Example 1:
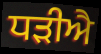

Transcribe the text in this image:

ਧੜੀਐ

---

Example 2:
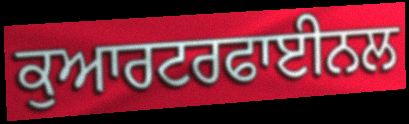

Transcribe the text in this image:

ਕੁਆਰਟਰਫਾਈਨਲ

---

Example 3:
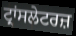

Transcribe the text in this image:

ਟ੍ਰਾਂਸਲੇਟਰਜ਼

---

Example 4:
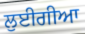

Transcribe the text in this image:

ਲੁਈਗੀਆ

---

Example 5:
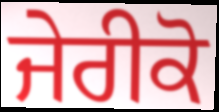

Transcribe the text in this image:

ਜੇਰੀਕੋ